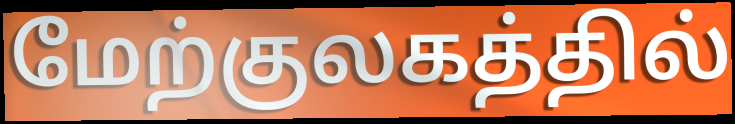
மேற்குலகத்தில்